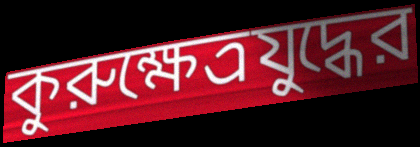
কুরুক্ষেত্রযুদ্ধের